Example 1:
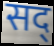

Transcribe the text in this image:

सद्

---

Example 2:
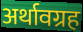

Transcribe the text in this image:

अर्थावग्रह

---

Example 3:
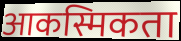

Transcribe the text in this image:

आकस्मिकता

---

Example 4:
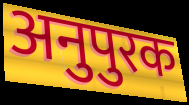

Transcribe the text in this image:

अनुपुरक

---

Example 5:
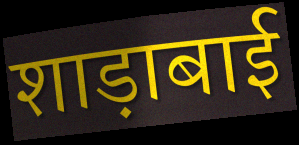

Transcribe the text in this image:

शाड़ाबाई